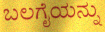
ಬಲಗೈಯನ್ನು